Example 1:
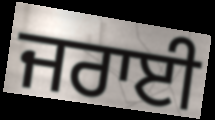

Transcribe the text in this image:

ਜਰਾਈ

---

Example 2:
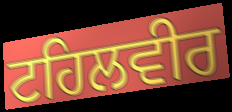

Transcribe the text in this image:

ਟਹਿਲਵੀਰ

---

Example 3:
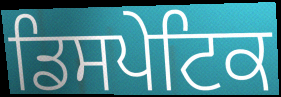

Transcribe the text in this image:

ਡਿਸਪੇਟਿਕ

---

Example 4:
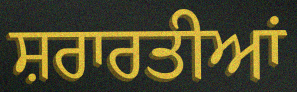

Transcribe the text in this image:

ਸ਼ਰਾਰਤੀਆਂ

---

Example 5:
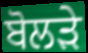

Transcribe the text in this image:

ਬੋਲੜੇ